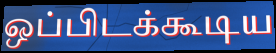
ஒப்பிடக்கூடிய